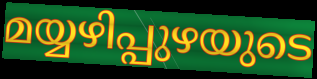
മയ്യഴിപ്പുഴയുടെ